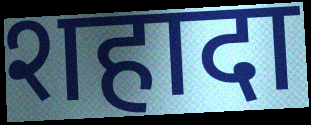
शहादा